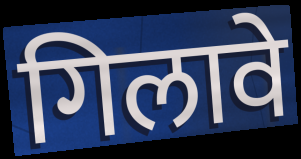
गिलावे